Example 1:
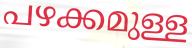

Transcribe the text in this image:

പഴക്കമുള്ള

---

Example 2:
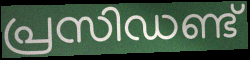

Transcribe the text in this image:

പ്രസിഡണ്ട്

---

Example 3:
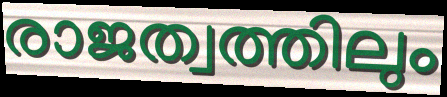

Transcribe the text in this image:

രാജത്വത്തിലും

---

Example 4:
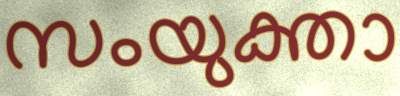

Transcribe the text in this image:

സംയുക്താ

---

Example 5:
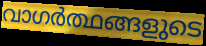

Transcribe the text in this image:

വാഗർത്ഥങ്ങളുടെ